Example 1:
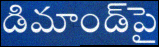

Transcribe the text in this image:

డిమాండ్‌పై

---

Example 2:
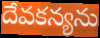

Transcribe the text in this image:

దేవకన్యను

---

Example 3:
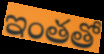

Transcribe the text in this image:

ఇంతతో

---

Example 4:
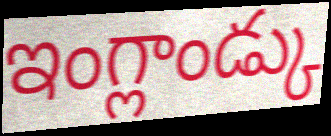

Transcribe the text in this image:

ఇంగ్లాండ్కు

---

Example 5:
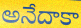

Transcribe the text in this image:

అనేదాకా